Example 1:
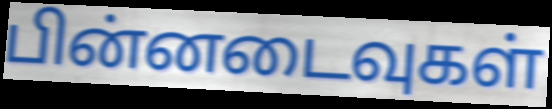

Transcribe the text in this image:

பின்னடைவுகள்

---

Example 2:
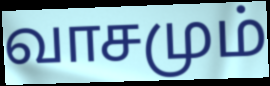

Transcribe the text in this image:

வாசமும்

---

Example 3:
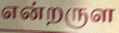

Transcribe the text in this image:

என்றருள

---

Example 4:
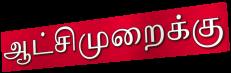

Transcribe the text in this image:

ஆட்சிமுறைக்கு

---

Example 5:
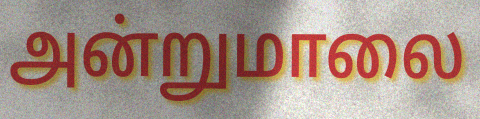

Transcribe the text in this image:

அன்றுமாலை